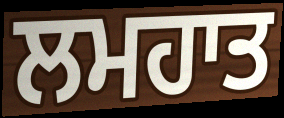
ਲਮਹਾਤ